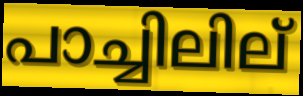
പാച്ചിലില്